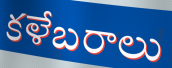
కళేబరాలు